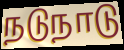
நடுநாடு